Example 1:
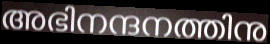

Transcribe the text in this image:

അഭിനന്ദനത്തിനു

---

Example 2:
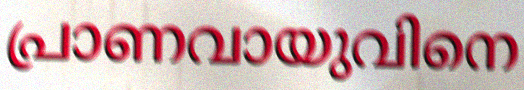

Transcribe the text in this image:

പ്രാണവായുവിനെ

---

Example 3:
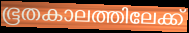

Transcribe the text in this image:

ഭൂതകാലത്തിലേക്ക്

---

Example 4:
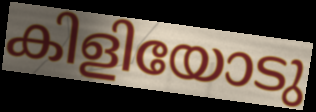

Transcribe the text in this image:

കിളിയോടു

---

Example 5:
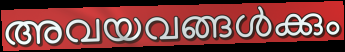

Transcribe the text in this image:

അവയവങ്ങൾക്കും